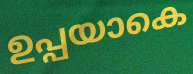
ഉപ്പയാകെ